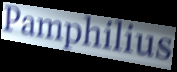
Pamphilius